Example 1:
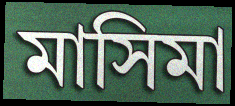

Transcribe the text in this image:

মাসিমা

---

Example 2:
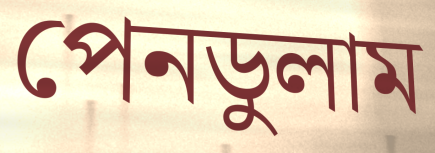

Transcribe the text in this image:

পেনডুলাম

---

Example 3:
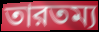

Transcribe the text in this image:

তারতম্য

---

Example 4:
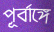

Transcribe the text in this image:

পূর্বাঙ্গে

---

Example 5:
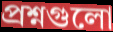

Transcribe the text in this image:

প্রশ্নগুলো